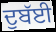
ਦੁਬੱਈ